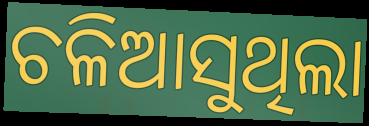
ଚଳିଆସୁଥିଲା